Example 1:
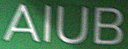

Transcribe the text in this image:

AIUB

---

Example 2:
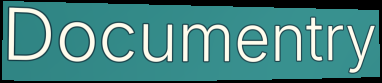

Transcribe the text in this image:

Documentry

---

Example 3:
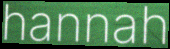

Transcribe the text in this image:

hannah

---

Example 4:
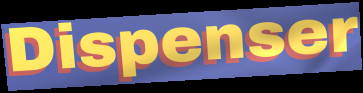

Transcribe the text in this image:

Dispenser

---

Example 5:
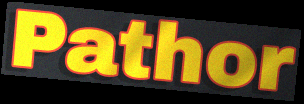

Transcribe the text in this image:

Pathor